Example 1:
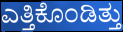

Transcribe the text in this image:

ಎತ್ತಿಕೊಂಡಿತ್ತು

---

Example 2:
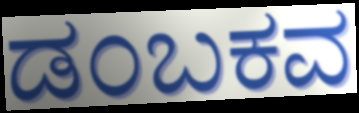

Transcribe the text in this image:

ಡಂಬಕವ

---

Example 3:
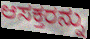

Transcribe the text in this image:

ಆಸಕ್ತರನ್ನು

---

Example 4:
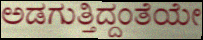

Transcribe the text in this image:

ಅಡಗುತ್ತಿದ್ದಂತೆಯೇ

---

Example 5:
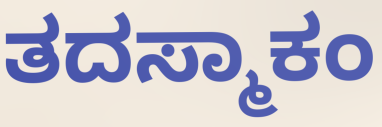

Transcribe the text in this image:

ತದಸ್ಮಾಕಂ